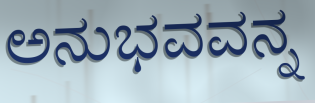
ಅನುಭವವನ್ನ